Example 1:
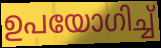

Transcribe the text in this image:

ഉപയോഗിച്ച്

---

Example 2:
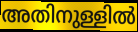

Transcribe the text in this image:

അതിനുള്ളിൽ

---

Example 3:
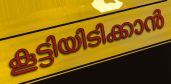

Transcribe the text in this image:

കൂട്ടിയിടിക്കാൻ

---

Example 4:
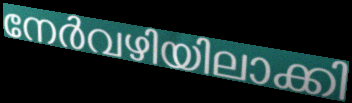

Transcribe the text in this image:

നേർവഴിയിലാക്കി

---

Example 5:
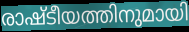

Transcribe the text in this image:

രാഷ്ടീയത്തിനുമായി